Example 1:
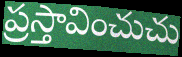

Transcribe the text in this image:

ప్రస్తావించుచు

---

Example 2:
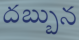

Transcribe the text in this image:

దబ్బున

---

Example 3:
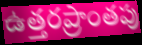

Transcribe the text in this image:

ఉత్తరప్రాంతపు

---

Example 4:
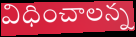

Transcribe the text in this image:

విధించాలన్న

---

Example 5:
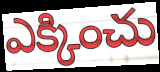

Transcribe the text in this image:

ఎక్కించు